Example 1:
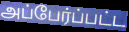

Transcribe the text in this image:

அப்பேர்ப்பட்ட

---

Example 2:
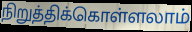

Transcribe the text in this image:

நிறுத்திக்கொள்ளலாம்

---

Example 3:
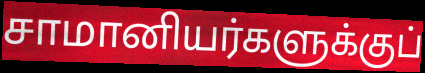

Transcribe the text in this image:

சாமானியர்களுக்குப்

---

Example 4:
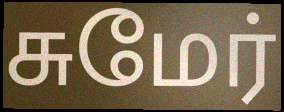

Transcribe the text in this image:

சுமேர்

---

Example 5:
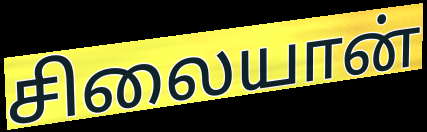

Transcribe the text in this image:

சிலையான்